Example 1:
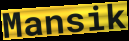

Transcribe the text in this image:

Mansik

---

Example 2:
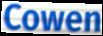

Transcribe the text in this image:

Cowen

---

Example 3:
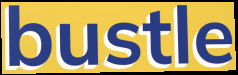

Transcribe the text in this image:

bustle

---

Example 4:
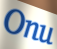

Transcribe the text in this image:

Onu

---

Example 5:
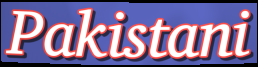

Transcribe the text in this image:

Pakistani